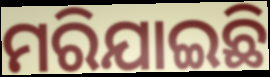
ମରିଯାଇଛି